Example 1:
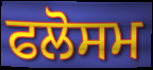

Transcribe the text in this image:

ਫਲੋਸਮ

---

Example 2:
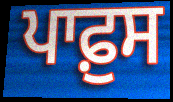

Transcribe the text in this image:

ਪਾਫ਼ੁਸ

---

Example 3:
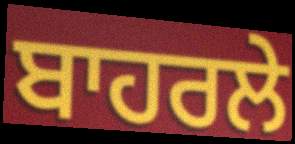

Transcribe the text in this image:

ਬਾਹਰਲੇ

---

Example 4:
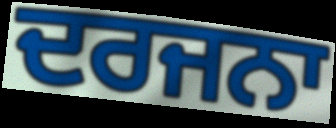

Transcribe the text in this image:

ਦਰਜਨਾ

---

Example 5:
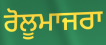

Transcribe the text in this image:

ਰੋਲੂਮਾਜਰਾ